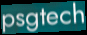
psgtech